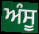
ਅੰਸੂ